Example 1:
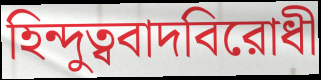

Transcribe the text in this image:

হিন্দুত্ববাদবিরোধী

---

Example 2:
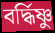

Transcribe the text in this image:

বর্দ্ধিষ্ণু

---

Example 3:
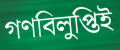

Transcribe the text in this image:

গণবিলুপ্তিই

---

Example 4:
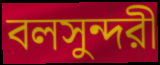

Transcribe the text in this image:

বলসুন্দরী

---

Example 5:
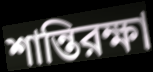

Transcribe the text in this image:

শান্তিরক্ষা